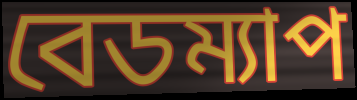
বেডম্যাপ